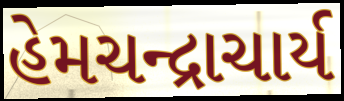
હેમચન્દ્રાચાર્ય